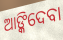
ଆଙ୍କିଦେବା